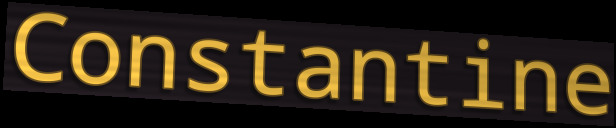
Constantine